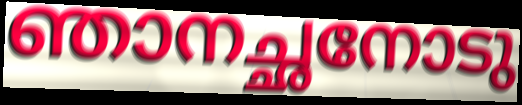
ഞാനച്ഛനോടു